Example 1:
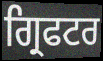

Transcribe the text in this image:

ਗ੍ਰਿਫਟਰ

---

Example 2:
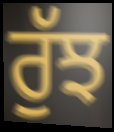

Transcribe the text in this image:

ਰੁੱਝ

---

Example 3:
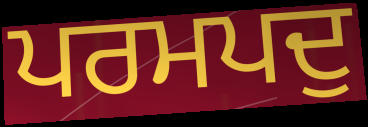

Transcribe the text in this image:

ਪਰਮਪਦੁ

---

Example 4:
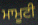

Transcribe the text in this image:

ਮਾਮੂਟੀ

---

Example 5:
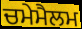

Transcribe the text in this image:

ਚਮੇਮੈਲਮ